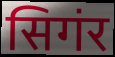
सिगंर